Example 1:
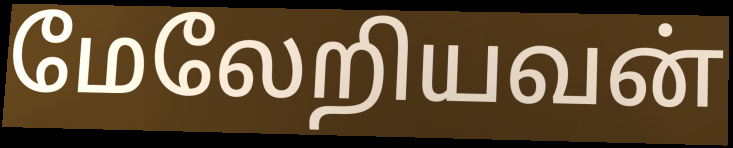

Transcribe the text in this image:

மேலேறியவன்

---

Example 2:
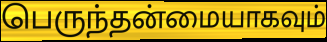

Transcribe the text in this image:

பெருந்தன்மையாகவும்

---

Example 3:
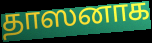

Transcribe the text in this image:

தாஸனாக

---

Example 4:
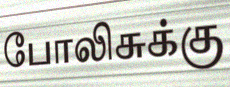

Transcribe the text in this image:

போலிசுக்கு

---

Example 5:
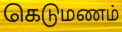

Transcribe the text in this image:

கெடுமணம்